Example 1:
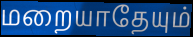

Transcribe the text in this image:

மறையாதேயும்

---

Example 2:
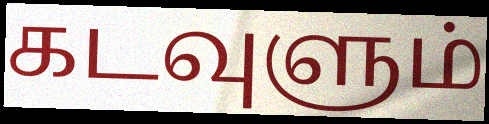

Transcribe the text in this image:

கடவுளும்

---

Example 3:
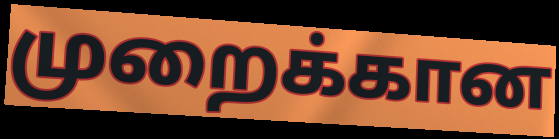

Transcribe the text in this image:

முறைக்கான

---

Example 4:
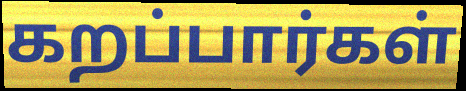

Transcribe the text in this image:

கறப்பார்கள்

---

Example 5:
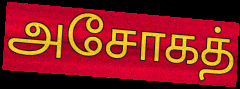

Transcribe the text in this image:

அசோகத்